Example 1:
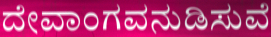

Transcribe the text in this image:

ದೇವಾಂಗವನುಡಿಸುವೆ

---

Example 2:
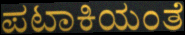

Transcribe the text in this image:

ಪಟಾಕಿಯಂತೆ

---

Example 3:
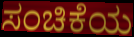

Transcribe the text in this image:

ಸಂಚಿಕೆಯ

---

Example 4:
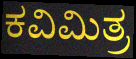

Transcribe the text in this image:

ಕವಿಮಿತ್ರ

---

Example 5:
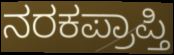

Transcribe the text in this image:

ನರಕಪ್ರಾಪ್ತಿ